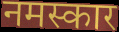
नमस्कार